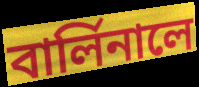
বার্লিনালে